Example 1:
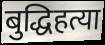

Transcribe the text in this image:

बुद्धिहत्या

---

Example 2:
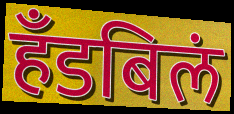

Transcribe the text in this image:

हँडबिलं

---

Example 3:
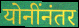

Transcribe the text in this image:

योनींनंतर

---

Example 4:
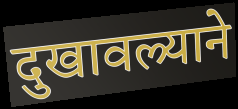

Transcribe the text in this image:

दुखावल्याने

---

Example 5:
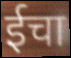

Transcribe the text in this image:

ईचा